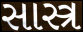
સાસ્ત્ર